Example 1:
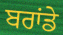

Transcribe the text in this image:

ਬਰਾਂਡੇ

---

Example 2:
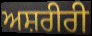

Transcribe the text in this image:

ਅਸ਼ਰੀਰੀ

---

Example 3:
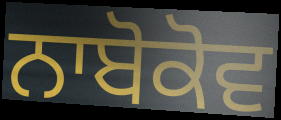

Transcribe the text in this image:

ਨਾਬੋਕੋਵ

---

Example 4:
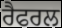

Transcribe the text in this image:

ਰੈਫਰਲ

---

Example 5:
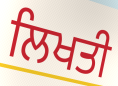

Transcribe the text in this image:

ਲਿਖਤੀ